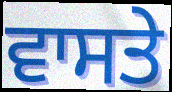
ਵਾਸਤੇ